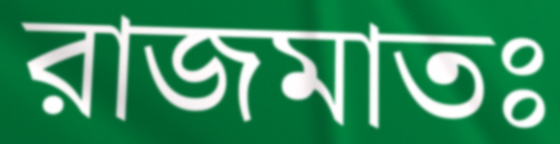
রাজমাতঃ